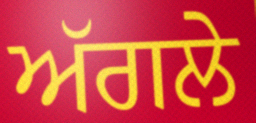
ਅੱਗਲੇ